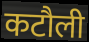
कटौली